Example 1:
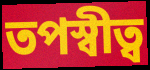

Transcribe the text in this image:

তপস্বীত্ব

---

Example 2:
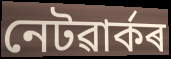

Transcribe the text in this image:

নেটৱাৰ্কৰ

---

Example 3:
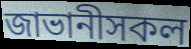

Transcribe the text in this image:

জাভানীসকল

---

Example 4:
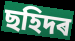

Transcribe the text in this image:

ছহিদৰ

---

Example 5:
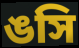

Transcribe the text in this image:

ঙসি